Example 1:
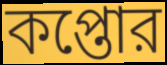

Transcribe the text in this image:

কপ্তোর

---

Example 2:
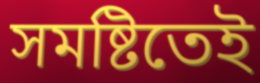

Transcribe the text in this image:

সমষ্টিতেই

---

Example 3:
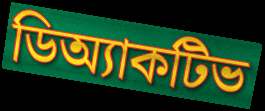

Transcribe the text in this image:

ডিঅ্যাকটিভ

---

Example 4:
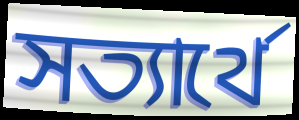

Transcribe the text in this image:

সত্যার্থে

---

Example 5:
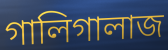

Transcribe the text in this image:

গালিগালাজ